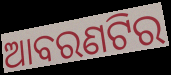
ଆବରଣଟିର